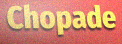
Chopade